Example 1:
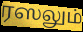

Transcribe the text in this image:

ரஸலும்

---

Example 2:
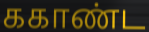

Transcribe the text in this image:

ககாண்ட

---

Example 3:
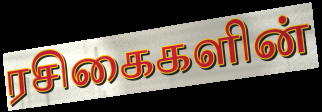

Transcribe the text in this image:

ரசிகைகளின்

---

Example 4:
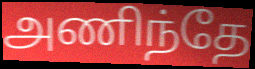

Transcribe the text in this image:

அணிந்தே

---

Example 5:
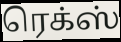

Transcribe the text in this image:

ரெக்ஸ்